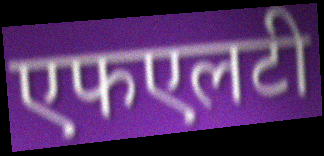
एफएलटी